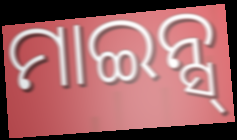
ମାଇନ୍ସ୍